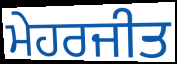
ਮੇਹਰਜੀਤ